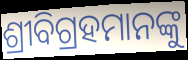
ଶ୍ରୀବିଗ୍ରହମାନଙ୍କୁ